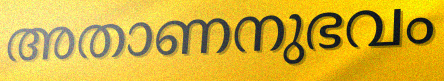
അതാണനുഭവം